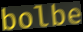
bolbe